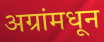
अग्रांमधून